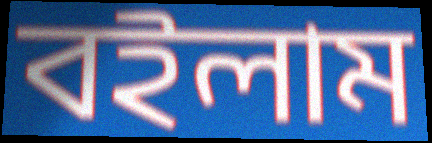
বইলাম